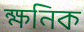
ক্ষনিক